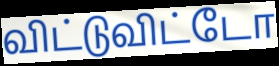
விட்டுவிட்டோ